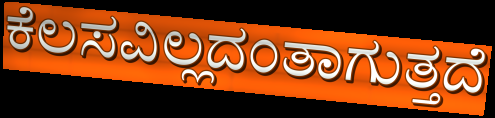
ಕೆಲಸವಿಲ್ಲದಂತಾಗುತ್ತದೆ